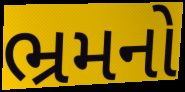
ભ્રમનો